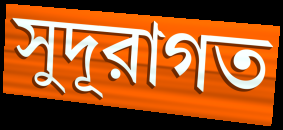
সুদূরাগত